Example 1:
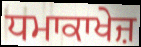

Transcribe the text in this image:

ਧਮਾਕਾਖੇਜ਼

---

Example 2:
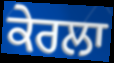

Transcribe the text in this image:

ਕੇਰਲਾ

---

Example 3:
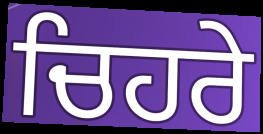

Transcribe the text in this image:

ਚਿਹਰੇ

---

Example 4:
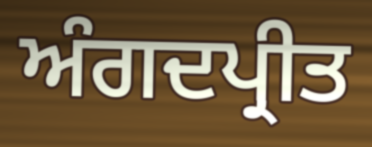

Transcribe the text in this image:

ਅੰਗਦਪ੍ਰੀਤ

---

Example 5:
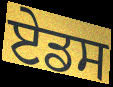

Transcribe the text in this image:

ਏਡਸ